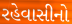
રહેવાસીનો